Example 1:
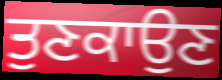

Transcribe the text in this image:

ਤੁਣਕਾਉਣ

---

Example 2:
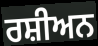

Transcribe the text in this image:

ਰਸ਼ੀਅਨ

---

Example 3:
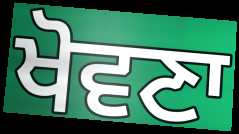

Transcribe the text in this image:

ਖੋਵਣਾ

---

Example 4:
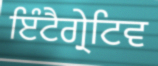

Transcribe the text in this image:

ਇੰਟੈਗ੍ਰੇਟਿਵ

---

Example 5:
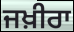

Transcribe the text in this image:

ਜਖ਼ੀਰਾ